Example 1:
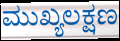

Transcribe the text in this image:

ಮುಖ್ಯಲಕ್ಷಣ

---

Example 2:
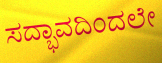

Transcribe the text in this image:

ಸದ್ಭಾವದಿಂದಲೇ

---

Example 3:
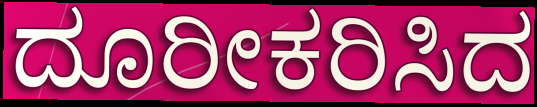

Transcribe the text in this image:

ದೂರೀಕರಿಸಿದ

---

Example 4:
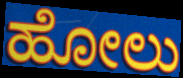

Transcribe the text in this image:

ಹೋಲು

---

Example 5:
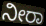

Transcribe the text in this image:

ನೀರಾ